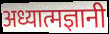
अध्यात्मज्ञानी